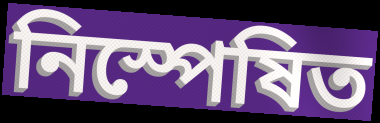
নিস্পেষিত